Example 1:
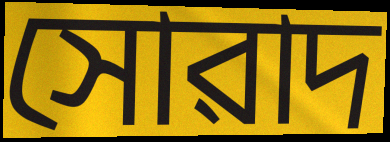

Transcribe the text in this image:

সোৱাদ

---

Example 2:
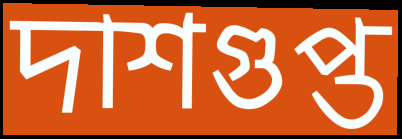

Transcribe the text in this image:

দাশগুপ্ত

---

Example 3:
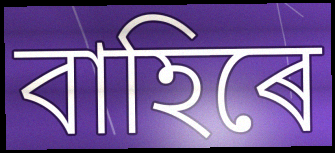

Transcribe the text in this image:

বাহিৰে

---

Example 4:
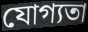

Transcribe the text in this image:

যোগ্যতা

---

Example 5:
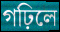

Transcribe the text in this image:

গঢ়িলে